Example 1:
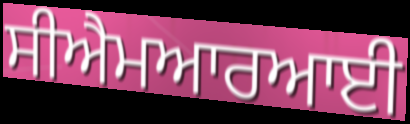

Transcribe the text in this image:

ਸੀਐਮਆਰਆਈ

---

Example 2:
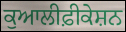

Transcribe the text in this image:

ਕੁਆਲੀਫ਼ੀਕੇਸ਼ਨ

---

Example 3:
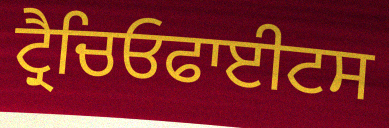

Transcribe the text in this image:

ਟ੍ਰੈਚਿਓਫਾਈਟਸ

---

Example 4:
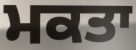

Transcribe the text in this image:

ਮਕਤਾ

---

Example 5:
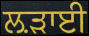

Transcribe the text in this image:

ਲ਼ੜਾਈ